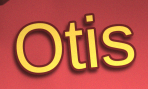
Otis